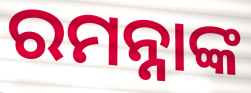
ରମନ୍ନାଙ୍କ